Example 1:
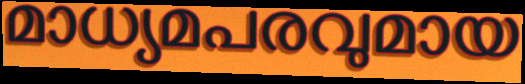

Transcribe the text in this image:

മാധ്യമപരവുമായ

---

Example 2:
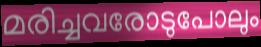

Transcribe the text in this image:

മരിച്ചവരോടുപോലും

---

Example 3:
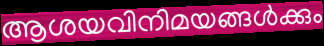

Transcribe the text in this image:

ആശയവിനിമയങ്ങൾക്കും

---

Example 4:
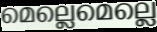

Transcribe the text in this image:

മെല്ലെമെല്ലെ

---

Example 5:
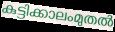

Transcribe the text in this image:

കുട്ടിക്കാലംമുതൽ